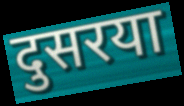
दुसरया